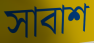
সাবাশ